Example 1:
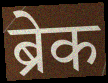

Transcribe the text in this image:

ब्रेक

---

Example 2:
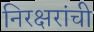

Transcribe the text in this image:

निरक्षरांची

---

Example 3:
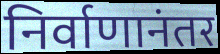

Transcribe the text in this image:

निर्वाणानंतर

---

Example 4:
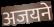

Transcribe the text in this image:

अजयने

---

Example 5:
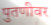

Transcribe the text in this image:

पुतणीवर